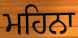
ਮਹਿਨਾ